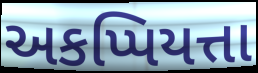
અકપ્પિયત્તા